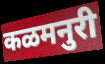
कळमनुरी